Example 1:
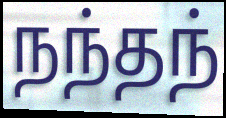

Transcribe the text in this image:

நந்தந்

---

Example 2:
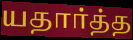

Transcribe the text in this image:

யதார்த்த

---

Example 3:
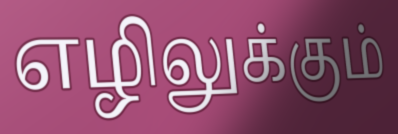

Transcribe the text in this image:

எழிலுக்கும்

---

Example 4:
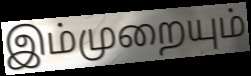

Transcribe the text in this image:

இம்முறையும்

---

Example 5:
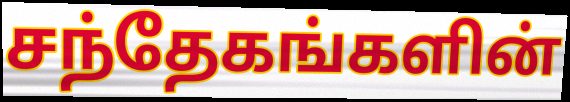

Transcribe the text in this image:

சந்தேகங்களின்